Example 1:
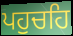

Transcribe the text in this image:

ਪਹੁਚਹਿ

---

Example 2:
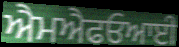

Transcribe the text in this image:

ਐਮਐਫਓਆਈ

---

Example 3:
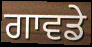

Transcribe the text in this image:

ਗਾਵਡੇ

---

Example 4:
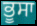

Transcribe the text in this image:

ਭੂਸਾ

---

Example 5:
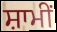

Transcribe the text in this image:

ਸ਼ਾਮੀਂ